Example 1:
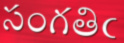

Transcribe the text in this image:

సంగతిఁ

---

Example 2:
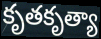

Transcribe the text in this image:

కృతకృత్యా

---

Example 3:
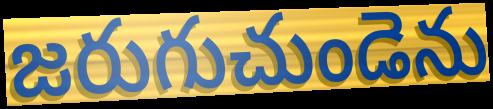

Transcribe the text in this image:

జరుగుచుండెను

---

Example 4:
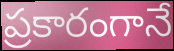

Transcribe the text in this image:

ప్రకారంగానే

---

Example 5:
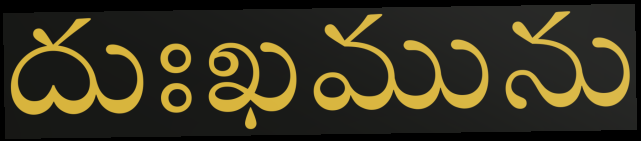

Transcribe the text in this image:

దుఃఖమును